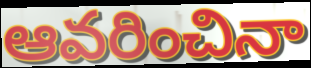
ఆవరించినా